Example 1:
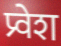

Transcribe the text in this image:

प्र्वेश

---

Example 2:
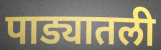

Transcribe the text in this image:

पाड्यातली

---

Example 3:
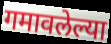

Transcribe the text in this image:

गमावलेल्या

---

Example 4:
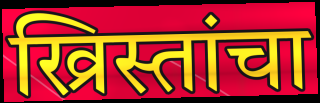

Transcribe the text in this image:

ख्रिस्तांचा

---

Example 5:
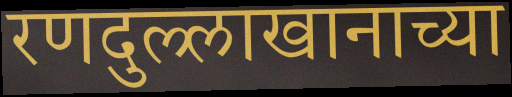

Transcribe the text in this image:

रणदुल्लाखानाच्या